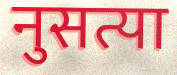
नुसत्या